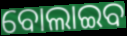
ବୋଲାଇବ